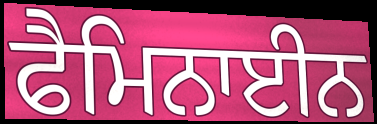
ਫੈਮਿਨਾਈਨ